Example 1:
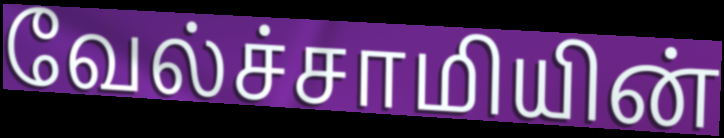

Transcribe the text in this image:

வேல்ச்சாமியின்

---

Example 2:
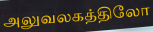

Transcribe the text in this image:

அலுவலகத்திலோ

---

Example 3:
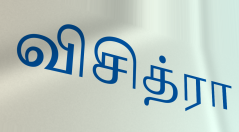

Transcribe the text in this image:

விசித்ரா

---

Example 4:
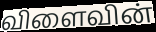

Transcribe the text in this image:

விளைவின்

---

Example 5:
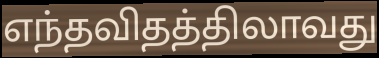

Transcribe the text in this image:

எந்தவிதத்திலாவது